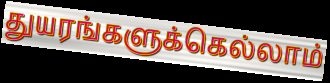
துயரங்களுக்கெல்லாம்